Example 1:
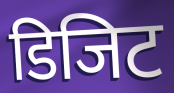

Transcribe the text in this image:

डिजिट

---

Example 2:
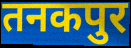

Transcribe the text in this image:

तनकपुर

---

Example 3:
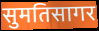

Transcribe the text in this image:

सुमतिसागर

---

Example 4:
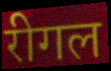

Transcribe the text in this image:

रीगल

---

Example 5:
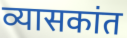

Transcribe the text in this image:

व्यासकांत